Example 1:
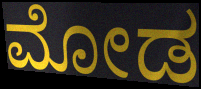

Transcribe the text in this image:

ಮೋಡ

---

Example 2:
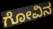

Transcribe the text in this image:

ಗೋವಿನ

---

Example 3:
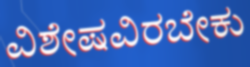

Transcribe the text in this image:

ವಿಶೇಷವಿರಬೇಕು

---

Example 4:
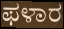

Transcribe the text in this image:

ಫಳಾರ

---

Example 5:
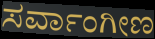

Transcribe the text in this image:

ಸರ್ವಾಂಗೀಣ